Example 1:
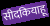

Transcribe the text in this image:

सीदकियाहू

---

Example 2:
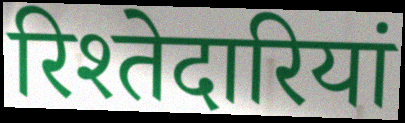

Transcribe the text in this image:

रिश्तेदारियां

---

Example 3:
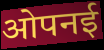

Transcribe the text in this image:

ओपनई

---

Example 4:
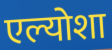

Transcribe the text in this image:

एल्योशा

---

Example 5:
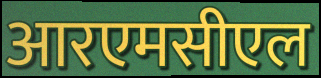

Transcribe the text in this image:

आरएमसीएल